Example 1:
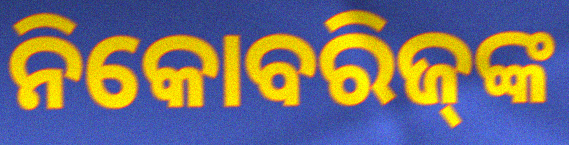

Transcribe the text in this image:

ନିକୋବରିଜ୍‍ଙ୍କ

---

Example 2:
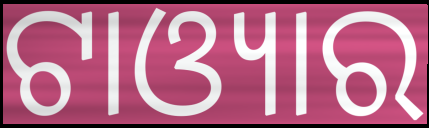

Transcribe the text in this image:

ଟାଓ୍ୟାର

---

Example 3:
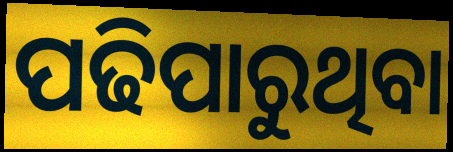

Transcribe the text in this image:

ପଢିପାରୁଥିବା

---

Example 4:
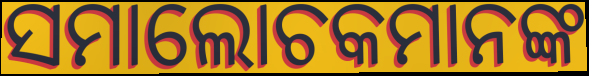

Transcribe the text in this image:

ସମାଲୋଚକମାନଙ୍କ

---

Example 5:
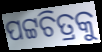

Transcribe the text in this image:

ପଟ୍ଟଚିତ୍ରକୁ